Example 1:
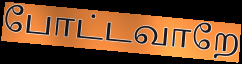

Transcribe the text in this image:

போட்டவாறே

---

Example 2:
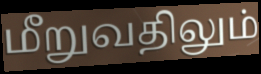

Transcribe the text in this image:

மீறுவதிலும்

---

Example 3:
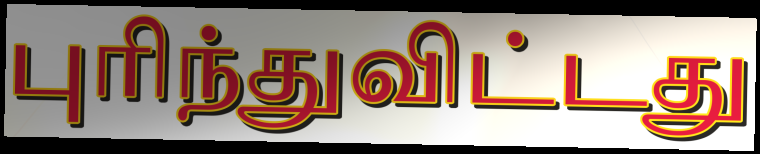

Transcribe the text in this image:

புரிந்துவிட்டது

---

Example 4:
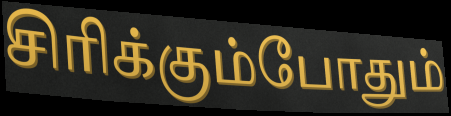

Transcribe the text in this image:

சிரிக்கும்போதும்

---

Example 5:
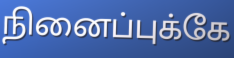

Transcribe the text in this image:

நினைப்புக்கே